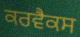
ਕਰਵੈਕਸ